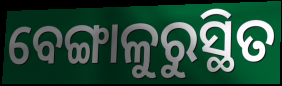
ବେଙ୍ଗାଳୁରୁସ୍ଥିତ